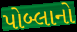
પોબ્લાનો